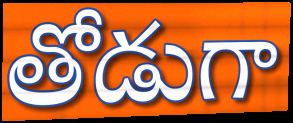
తోడుగా